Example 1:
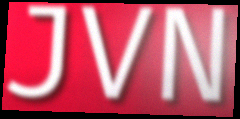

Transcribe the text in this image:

JVN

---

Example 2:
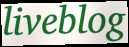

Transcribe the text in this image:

liveblog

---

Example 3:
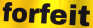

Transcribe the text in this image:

forfeit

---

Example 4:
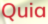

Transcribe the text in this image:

Quia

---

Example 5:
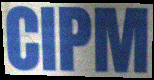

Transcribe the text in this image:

CIPM